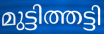
മുട്ടിത്തട്ടി